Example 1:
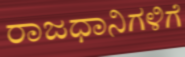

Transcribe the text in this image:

ರಾಜಧಾನಿಗಳಿಗೆ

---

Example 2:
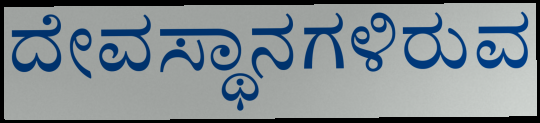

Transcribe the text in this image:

ದೇವಸ್ಥಾನಗಳಿರುವ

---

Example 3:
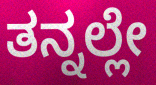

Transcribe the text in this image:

ತನ್ನಲ್ಲೇ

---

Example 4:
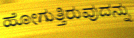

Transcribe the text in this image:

ಹೋಗುತ್ತಿರುವುದನ್ನು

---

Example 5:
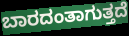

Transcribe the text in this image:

ಬಾರದಂತಾಗುತ್ತದೆ